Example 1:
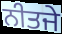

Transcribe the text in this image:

ਨੀਤਜੇ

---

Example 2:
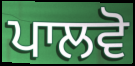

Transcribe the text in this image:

ਪਾਲਵੋ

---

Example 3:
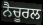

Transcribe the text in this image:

ਨੈਚੂਰਲ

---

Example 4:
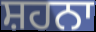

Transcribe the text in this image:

ਸ਼ਹਨਾ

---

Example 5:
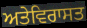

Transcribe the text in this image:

ਅਤੇਵਿਰਾਸਤ